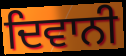
ਦਿਵਾਨੀ